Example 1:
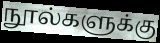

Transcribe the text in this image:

நூல்களுக்கு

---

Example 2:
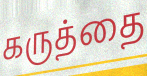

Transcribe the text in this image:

கருத்தை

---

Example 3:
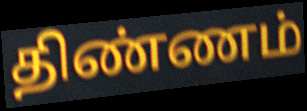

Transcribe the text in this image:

திண்ணம்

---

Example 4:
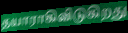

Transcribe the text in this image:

தயாராகிவிடுகிறது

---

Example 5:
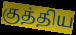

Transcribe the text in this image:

குத்திய